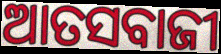
ଆତସବାଜୀ